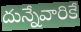
దున్నేవారికే